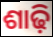
ଶାଢ଼ି